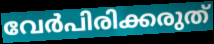
വേർപിരിക്കരുത്